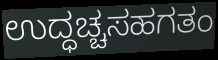
ಉದ್ಧಚ್ಚಸಹಗತಂ